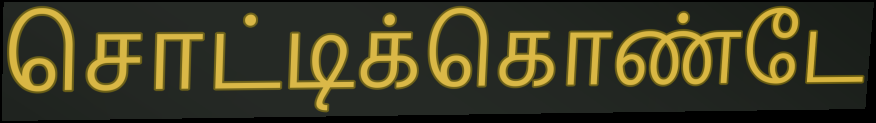
சொட்டிக்கொண்டே